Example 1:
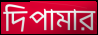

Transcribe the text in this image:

দিপামার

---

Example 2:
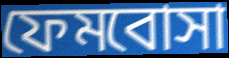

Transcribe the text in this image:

ফেমবোসা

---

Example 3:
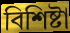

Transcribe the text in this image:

বিশিষ্টা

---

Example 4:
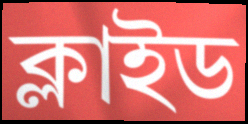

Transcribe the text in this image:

ক্লাইড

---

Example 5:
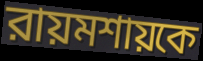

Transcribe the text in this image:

রায়মশায়কে